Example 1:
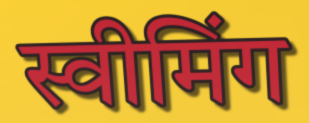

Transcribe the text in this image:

स्वीमिंग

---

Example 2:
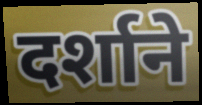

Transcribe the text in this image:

दर्शाने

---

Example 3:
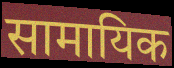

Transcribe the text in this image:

सामायिक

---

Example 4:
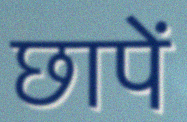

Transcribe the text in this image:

छापें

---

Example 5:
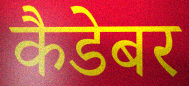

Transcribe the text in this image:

कैडेबर